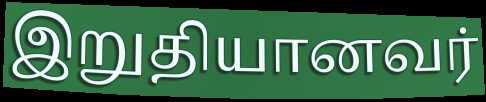
இறுதியானவர்